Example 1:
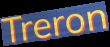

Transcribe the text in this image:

Treron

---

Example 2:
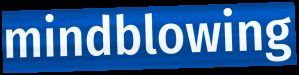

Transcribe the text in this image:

mindblowing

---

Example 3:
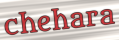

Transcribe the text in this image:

chehara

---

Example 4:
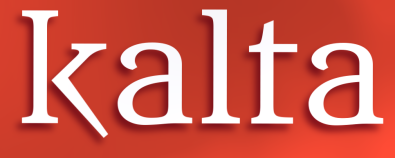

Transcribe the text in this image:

kalta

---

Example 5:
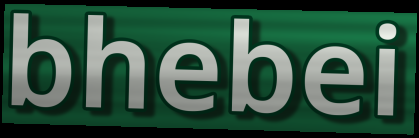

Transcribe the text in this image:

bhebei